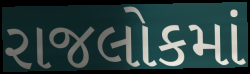
રાજલોકમાં